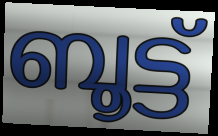
ബൂട്ട്